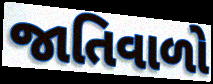
જાતિવાળો